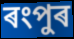
ৰংপুৰ